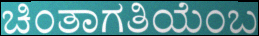
ಚಿಂತಾಗತಿಯೆಂಬ